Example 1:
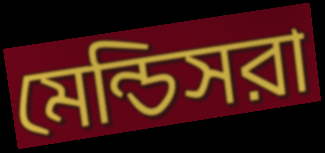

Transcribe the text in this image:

মেন্ডিসরা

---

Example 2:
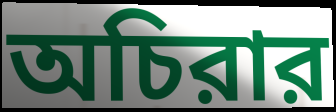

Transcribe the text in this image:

অচিরার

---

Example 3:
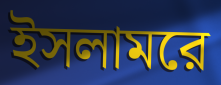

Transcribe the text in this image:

ইসলামরে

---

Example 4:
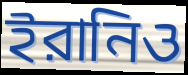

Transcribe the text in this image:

ইরানিও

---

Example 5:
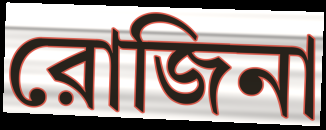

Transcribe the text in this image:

রোজিনা